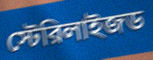
স্টেরিলাইজড